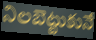
నిలబెట్టుకునే